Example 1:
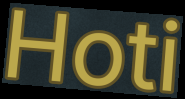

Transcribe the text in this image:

Hoti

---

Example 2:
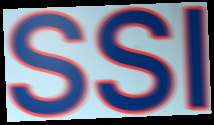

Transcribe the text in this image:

SSI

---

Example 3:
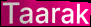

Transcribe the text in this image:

Taarak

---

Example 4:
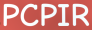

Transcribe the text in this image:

PCPIR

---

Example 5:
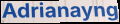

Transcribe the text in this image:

Adrianayng